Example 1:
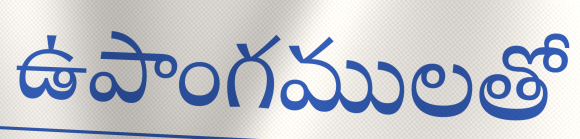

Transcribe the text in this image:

ఉపాంగములతో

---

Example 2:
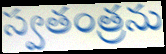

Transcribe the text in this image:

స్వతంత్రను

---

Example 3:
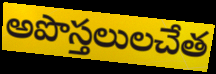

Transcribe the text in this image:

అపొస్తలులచేత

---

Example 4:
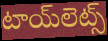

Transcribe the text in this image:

టాయ్‌లెట్స్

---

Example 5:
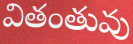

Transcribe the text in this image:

వితంతువు